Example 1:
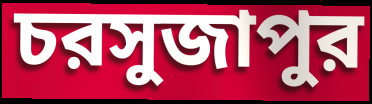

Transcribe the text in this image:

চরসুজাপুর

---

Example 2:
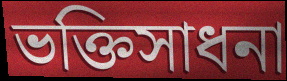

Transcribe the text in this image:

ভক্তিসাধনা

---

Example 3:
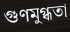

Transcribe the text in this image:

গুণমুগ্ধতা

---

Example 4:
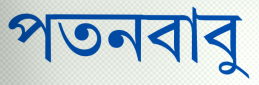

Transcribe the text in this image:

পতনবাবু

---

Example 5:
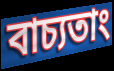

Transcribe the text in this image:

বাচ্যতাং